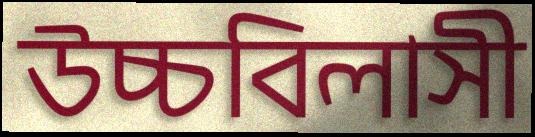
উচ্চবিলাসী